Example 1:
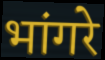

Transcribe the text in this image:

भांगरे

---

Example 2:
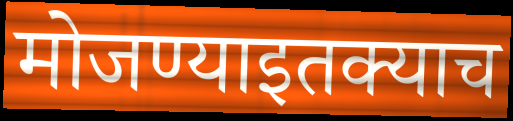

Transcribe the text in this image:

मोजण्याइतक्याच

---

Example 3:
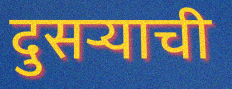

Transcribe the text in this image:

दुसऱ्याची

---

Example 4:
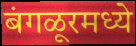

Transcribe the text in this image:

बंगळूरमध्ये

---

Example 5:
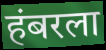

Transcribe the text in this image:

हंबरला